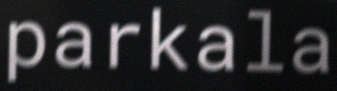
parkala